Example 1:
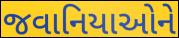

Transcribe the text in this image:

જવાનિયાઓને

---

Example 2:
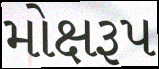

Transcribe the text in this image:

મોક્ષરૂપ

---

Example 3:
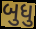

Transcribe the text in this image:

બુધુ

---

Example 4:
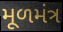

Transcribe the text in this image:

મૂળમંત્ર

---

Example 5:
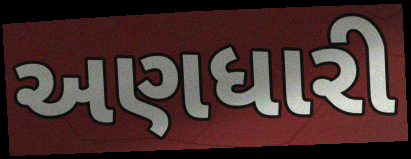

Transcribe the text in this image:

અણધારી